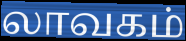
லாவகம்